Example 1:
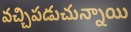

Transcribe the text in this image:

వచ్చిపడుచున్నాయి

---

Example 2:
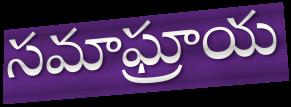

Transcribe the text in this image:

సమాఘ్రాయ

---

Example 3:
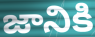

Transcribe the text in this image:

జానికి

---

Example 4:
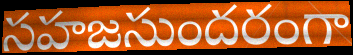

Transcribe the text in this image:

సహజసుందరంగా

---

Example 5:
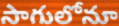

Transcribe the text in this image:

సాగులోనూ